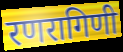
रणरागिणी